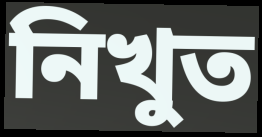
নিখুত